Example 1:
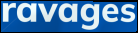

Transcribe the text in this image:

ravages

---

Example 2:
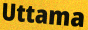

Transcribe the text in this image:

Uttama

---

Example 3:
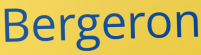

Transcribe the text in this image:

Bergeron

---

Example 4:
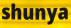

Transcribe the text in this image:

shunya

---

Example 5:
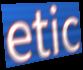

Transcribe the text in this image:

etic